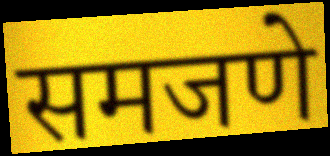
समजणे